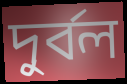
দুৰ্বল